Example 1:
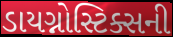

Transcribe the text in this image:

ડાયગ્નોસ્ટિક્સની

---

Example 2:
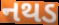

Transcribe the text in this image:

નથડ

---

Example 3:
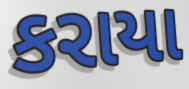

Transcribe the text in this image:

કરાયા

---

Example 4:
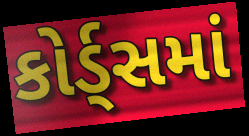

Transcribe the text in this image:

કોર્ડ્સમાં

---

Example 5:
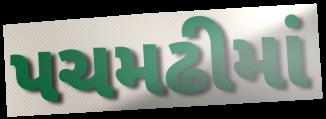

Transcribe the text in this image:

પચમઢીમાં